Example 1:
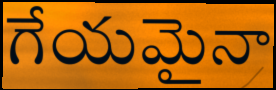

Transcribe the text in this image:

గేయమైనా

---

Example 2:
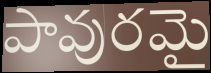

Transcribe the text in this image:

పావురమై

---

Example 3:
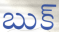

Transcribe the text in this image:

బుక్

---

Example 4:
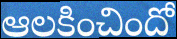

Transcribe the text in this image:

ఆలకించిందో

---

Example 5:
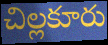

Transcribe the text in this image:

చిల్లకూరు